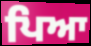
ਪਿਆ